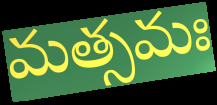
మత్సమః